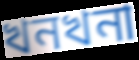
খনখনা